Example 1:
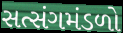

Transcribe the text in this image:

સત્સંગમંડળો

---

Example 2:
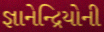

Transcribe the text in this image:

જ્ઞાનેન્દ્રિયોની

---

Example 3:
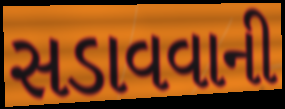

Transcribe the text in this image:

સડાવવાની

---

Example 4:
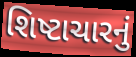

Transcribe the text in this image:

શિષ્ટાચારનું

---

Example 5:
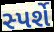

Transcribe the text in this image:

સ્પર્શે